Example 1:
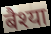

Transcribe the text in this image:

बैश्या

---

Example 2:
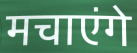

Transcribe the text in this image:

मचाएंगे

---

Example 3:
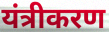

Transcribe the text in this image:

यंत्रीकरण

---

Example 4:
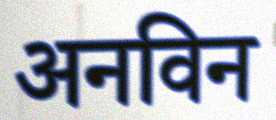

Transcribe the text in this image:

अनविन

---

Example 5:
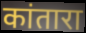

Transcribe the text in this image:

कांतारा